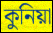
কুনিয়া